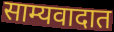
साम्यवादात